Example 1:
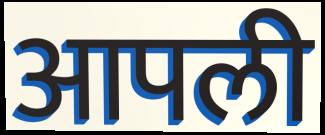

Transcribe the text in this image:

आपली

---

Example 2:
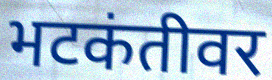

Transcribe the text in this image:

भटकंतीवर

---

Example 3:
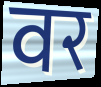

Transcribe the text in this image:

वर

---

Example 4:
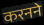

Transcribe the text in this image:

करनने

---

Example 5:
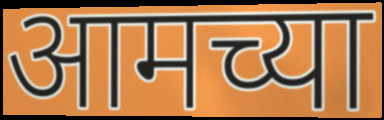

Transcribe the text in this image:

आमच्या